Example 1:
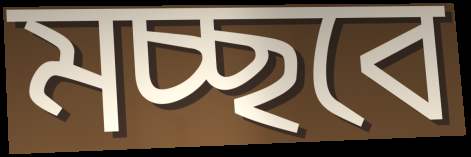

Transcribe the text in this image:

মচ্ছবে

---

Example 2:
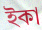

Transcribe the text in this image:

ইকা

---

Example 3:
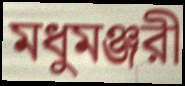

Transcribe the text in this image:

মধুমঞ্জরী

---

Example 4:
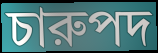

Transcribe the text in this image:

চারুপদ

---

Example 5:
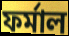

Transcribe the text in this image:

ফর্মাল